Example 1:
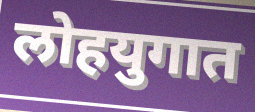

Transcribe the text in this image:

लोहयुगात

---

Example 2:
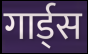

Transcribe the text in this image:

गार्ड्स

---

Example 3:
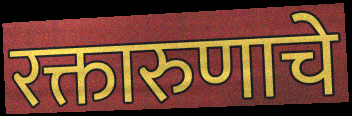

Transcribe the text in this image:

रक्तारुणाचे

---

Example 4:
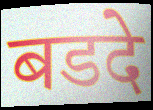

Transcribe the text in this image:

बडदे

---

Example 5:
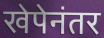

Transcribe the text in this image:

खेपेनंतर